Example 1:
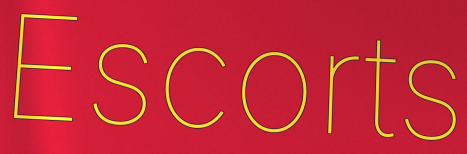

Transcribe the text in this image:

Escorts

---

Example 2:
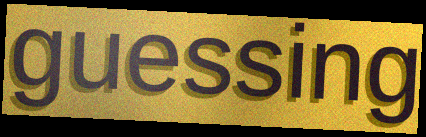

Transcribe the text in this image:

guessing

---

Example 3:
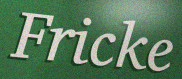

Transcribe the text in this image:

Fricke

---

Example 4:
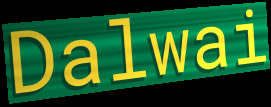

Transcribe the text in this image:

Dalwai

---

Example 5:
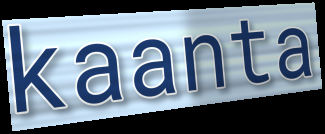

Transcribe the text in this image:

kaanta